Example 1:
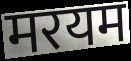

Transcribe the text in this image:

मरयम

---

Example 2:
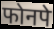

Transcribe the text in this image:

फोनपे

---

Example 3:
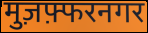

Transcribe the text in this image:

मुज़फ़्फरनगर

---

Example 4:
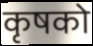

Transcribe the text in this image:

कृषको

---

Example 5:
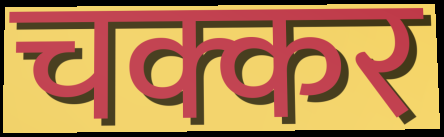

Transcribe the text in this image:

चक्‍कर